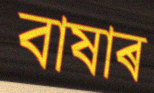
বাষাৰ